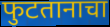
फुटतानाचा